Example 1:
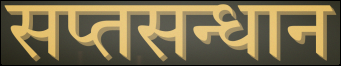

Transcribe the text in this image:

सप्तसन्धान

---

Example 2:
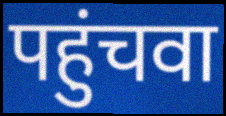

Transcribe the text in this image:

पहुंचवा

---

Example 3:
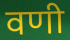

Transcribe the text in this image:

वणी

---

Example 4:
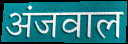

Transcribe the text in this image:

अंजवाल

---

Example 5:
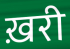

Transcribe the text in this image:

ख़री